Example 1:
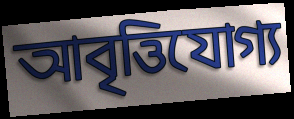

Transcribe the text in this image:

আবৃত্তিযোগ্য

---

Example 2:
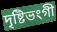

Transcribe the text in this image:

দৃষ্টিভংগী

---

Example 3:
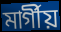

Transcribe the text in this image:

মার্গীয়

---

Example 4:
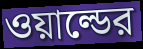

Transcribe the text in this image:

ওয়াল্ডের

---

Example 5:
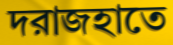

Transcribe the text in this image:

দরাজহাতে